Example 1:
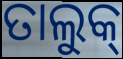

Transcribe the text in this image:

ତାଲୁକ୍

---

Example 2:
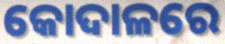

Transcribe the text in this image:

କୋଦାଳରେ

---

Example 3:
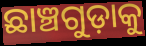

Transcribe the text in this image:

ଛାଞ୍ଚଗୁଡ଼ାକୁ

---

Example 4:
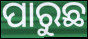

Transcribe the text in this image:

ପାରୁଛ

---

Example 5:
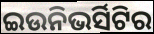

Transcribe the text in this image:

ଇଉନିଭର୍ସିଟିର